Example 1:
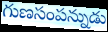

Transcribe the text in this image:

గుణసంపన్నుడు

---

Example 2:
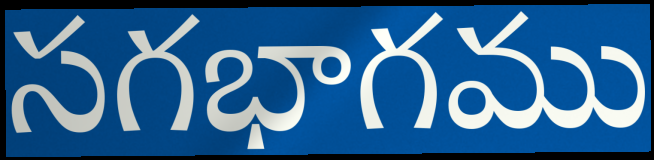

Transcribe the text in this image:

సగభాగము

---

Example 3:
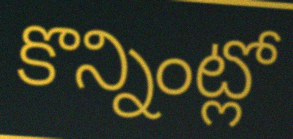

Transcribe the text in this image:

కొన్నింట్లో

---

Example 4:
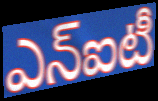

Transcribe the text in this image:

ఎన్ఐటీ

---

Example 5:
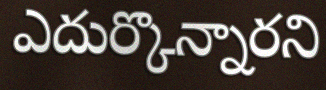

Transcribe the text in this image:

ఎదుర్కొన్నారని